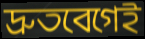
দ্রুতবেগেই